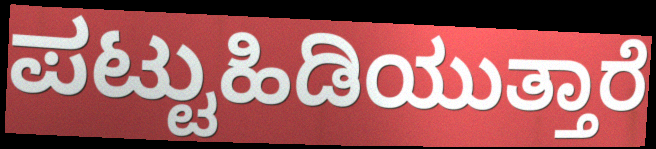
ಪಟ್ಟುಹಿಡಿಯುತ್ತಾರೆ